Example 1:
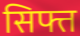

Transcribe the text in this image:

सिफ्त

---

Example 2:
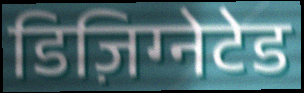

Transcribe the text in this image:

डिज़िग्नेटेड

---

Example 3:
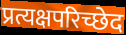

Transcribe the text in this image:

प्रत्यक्षपरिच्छेद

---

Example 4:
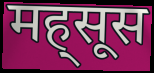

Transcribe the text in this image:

मह्सूस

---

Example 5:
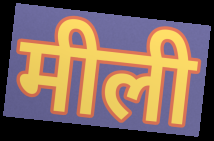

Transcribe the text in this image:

मीली